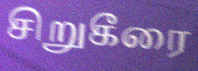
சிறுகீரை